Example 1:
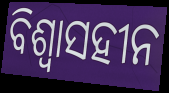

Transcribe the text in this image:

ବିଶ୍ୱାସହୀନ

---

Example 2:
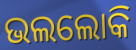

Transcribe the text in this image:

ଭଲଲୋକି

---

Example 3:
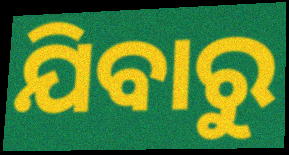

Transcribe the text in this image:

ଯିବାରୁ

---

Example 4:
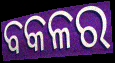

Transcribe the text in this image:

ବକଳର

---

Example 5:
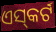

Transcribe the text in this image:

ଏସ୍‌କର୍ଟ